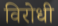
विरोधी